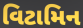
વિટામિન